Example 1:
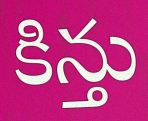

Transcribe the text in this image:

కిన్తు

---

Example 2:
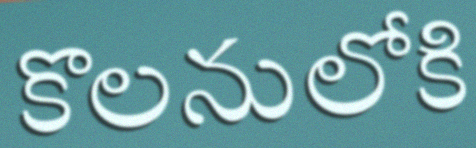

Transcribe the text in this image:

కొలనులోకి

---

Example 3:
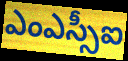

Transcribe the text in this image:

ఎంఎస్సీఐ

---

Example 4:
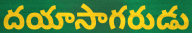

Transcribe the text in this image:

దయాసాగరుడు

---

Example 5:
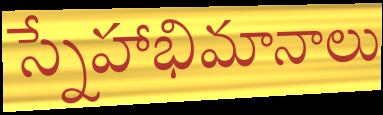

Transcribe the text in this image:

స్నేహాభిమానాలు